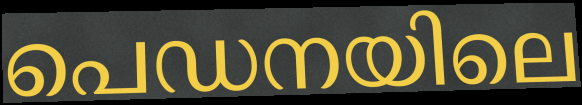
പെഡനയിലെ